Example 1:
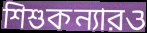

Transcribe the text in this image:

শিশুকন্যারও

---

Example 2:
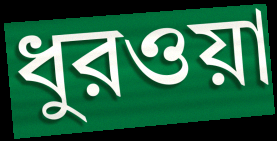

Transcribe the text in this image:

ধুরওয়া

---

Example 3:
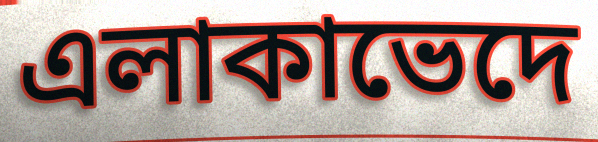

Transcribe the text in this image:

এলাকাভেদে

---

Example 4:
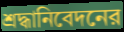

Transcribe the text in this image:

শ্রদ্ধানিবেদনের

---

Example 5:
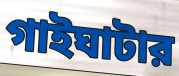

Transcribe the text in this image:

গাইঘাটার